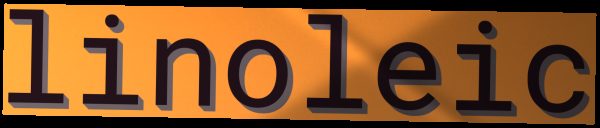
linoleic